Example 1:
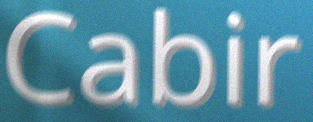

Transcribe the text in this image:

Cabir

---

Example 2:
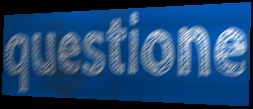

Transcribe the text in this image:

questione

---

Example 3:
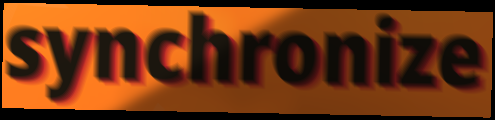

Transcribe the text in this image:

synchronize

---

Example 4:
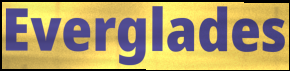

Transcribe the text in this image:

Everglades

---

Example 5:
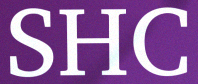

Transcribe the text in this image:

SHC